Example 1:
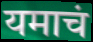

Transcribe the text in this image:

यमाचं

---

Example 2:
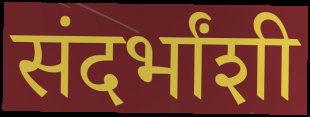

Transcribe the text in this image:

संदर्भांशी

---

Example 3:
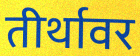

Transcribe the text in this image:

तीर्थावर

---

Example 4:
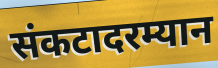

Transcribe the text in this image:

संकटादरम्यान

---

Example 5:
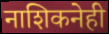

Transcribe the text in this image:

नाशिकनेही